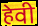
हेवी